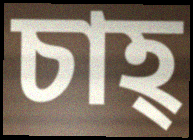
চাহ্